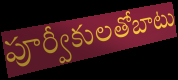
పూర్వీకులతోబాటు